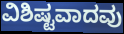
ವಿಶಿಷ್ಟವಾದವು